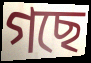
গছে